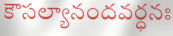
కౌసల్యానందవర్ధనః